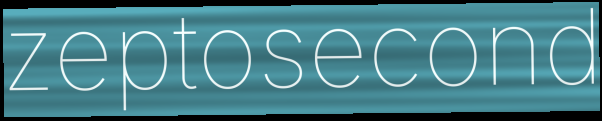
zeptosecond